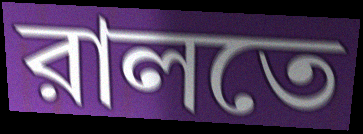
রালতে